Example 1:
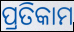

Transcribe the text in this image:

ପ୍ରତିକାମ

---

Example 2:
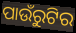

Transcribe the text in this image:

ପାଉଁରୁଟିର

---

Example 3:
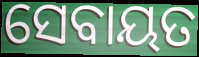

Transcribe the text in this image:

ସେବାୟତ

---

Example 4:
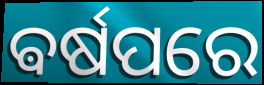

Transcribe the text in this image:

ଵର୍ଷପରେ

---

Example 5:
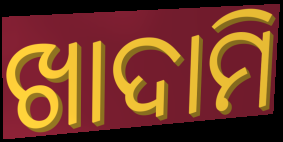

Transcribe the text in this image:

ଖାଦାମି